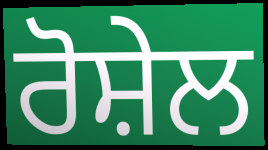
ਰੋਸ਼ੇਲ